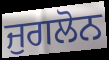
ਜੁਗਲੋਨ